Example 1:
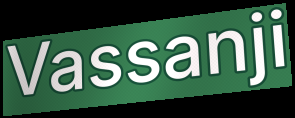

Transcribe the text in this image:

Vassanji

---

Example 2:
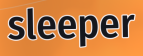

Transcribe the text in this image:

sleeper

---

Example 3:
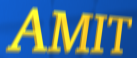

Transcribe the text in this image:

AMIT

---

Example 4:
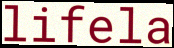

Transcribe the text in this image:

lifela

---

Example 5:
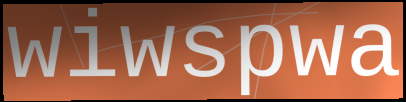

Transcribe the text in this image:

wiwspwa